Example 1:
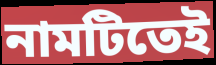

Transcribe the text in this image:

নামটিতেই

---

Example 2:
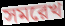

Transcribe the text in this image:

সমরেখ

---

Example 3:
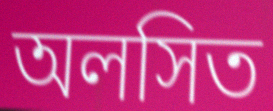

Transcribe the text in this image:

অলসিত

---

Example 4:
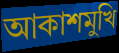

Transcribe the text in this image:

আকাশমুখি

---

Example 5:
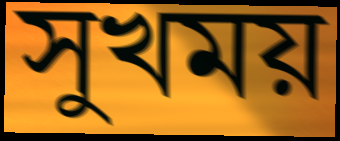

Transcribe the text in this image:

সুখময়